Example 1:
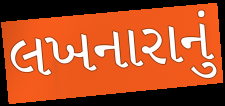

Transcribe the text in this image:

લખનારાનું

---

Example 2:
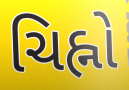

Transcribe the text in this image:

ચિહ્નો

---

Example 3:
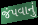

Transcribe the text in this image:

જંપવાનું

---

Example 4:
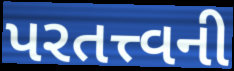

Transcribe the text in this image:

પરતત્ત્વની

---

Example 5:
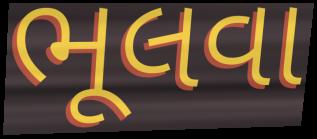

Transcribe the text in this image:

ભૂલવા